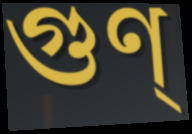
গুণ্